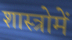
शास्त्रोमें